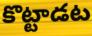
కొట్టాడట